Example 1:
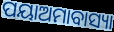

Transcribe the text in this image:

ପୟାଅମାବାସ୍ୟା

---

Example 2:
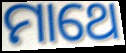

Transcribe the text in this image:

ମାଥେ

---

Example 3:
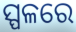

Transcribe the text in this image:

ସ୍ପଳରେ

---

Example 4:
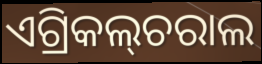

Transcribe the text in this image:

ଏଗ୍ରିକଲ୍‌ଚରାଲ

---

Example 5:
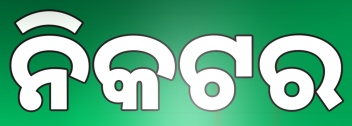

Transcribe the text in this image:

ନିକଟର